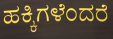
ಹಕ್ಕಿಗಳೆಂದರೆ